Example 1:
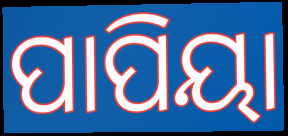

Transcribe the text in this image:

ପାପିୟା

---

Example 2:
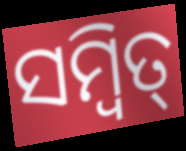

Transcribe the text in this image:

ସମ୍ବିତ୍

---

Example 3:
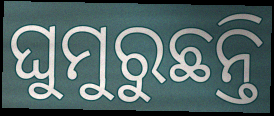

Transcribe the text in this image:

ଘୁମୁରୁଛନ୍ତି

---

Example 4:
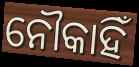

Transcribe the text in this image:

ନୌକାହିଁ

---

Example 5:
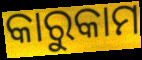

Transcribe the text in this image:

କାରୁକାମ